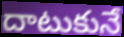
దాటుకునే